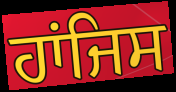
ਹਾਂਜਿਸ